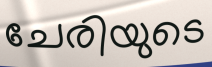
ചേരിയുടെ